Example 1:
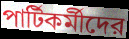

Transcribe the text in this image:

পার্টিকর্মীদের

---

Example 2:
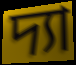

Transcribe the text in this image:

দ্যা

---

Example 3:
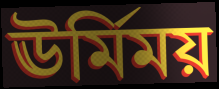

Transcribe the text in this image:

ঊর্মিময়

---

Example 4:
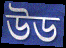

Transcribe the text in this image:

উড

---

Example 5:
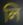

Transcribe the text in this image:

লি